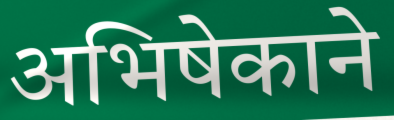
अभिषेकाने